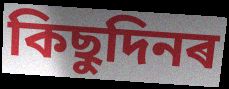
কিছুদিনৰ